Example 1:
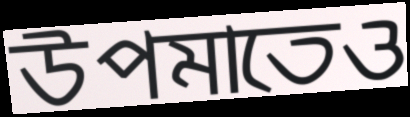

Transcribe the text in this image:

উপমাতেও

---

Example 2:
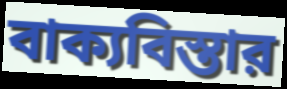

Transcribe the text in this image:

বাক্যবিস্তার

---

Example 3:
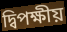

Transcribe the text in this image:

দ্বিপক্ষীয়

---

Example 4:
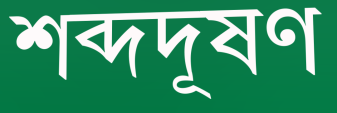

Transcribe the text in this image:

শব্দদূষণ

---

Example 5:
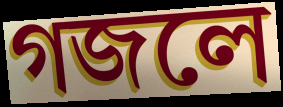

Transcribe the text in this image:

গজলে